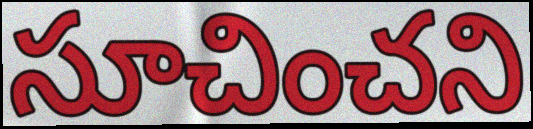
సూచించని